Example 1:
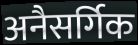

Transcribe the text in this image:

अनैसर्गिक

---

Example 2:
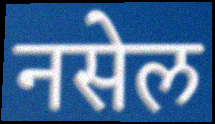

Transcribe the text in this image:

नसेल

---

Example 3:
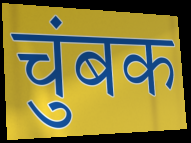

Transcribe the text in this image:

चुंबक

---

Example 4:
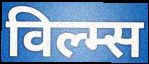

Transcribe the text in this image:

विल्म्स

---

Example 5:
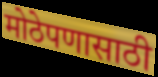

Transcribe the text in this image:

मोठेपणासाठी